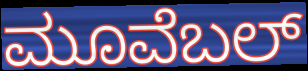
ಮೂವೆಬಲ್